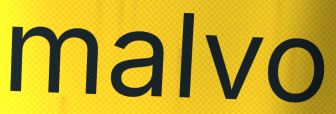
malvo